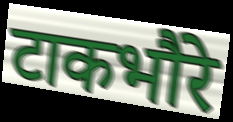
टाकभौरे